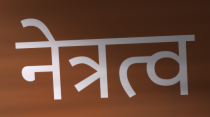
नेत्रत्व